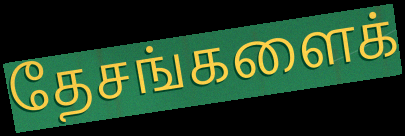
தேசங்களைக்